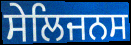
ਸੇਲਿਜਨਸ